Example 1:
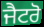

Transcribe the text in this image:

ਜੈਟਰੋ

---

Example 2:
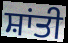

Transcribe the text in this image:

ਸ਼ਾਂਤੀ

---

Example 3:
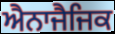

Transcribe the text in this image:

ਐਨਾਜੈਜਿਕ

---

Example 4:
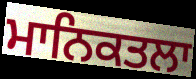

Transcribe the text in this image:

ਮਾਨਿਕਤਲਾ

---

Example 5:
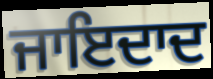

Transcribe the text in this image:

ਜਾਇਦਾਦ